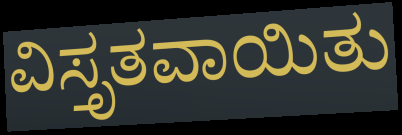
ವಿಸ್ತೃತವಾಯಿತು